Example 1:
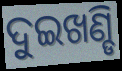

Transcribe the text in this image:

ଦୁଇଖଣ୍ଡି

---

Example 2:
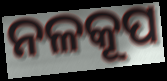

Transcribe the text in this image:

ନଳକୂପ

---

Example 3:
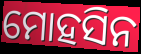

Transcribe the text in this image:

ମୋହସିନ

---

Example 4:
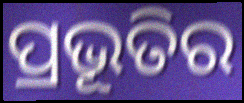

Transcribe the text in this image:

ପ୍ରଭୂତିର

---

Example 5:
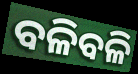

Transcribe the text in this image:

ବଳିବଳି